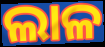
ଲାଳ